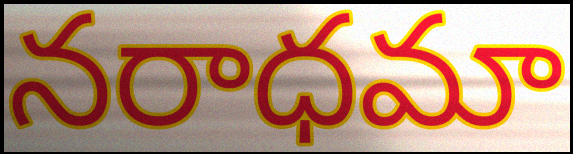
నరాధమా